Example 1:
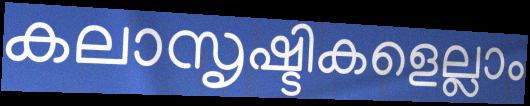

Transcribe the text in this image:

കലാസൃഷ്ടികളെല്ലാം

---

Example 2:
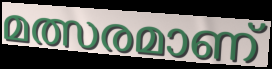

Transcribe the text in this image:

മത്സരമാണ്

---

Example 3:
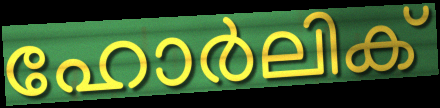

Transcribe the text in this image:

ഹോർലിക്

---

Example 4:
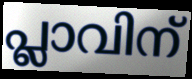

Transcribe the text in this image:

പ്ലാവിന്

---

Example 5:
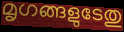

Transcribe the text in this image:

മൃഗങ്ങളുടേതു